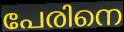
പേരിനെ